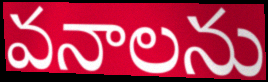
వనాలను